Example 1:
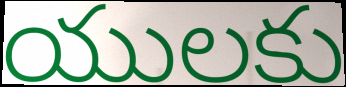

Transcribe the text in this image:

యులకు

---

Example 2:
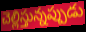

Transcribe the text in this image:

చెల్లిస్తున్నప్పుడు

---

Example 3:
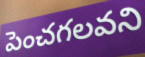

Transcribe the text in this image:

పెంచగలవని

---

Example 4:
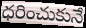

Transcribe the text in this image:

ధరించుకునే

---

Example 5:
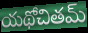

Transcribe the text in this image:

యథోచితమ్